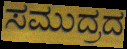
ಸಮುದ್ರದ